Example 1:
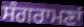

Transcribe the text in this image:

ਸੰਗਰਾਮਣਾਂ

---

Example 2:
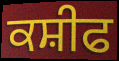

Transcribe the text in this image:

ਕਸ਼ੀਫ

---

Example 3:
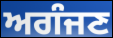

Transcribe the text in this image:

ਅਗੰਜਣ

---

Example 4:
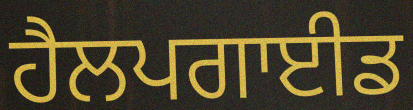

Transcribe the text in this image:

ਹੈਲਪਗਾਈਡ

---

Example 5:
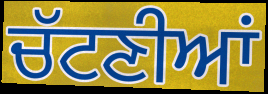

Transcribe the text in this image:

ਚੱਟਣੀਆਂ